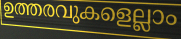
ഉത്തരവുകളെല്ലാം